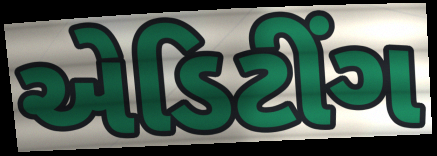
એડિટીંગ